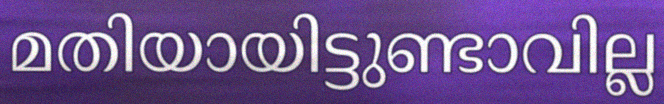
മതിയായിട്ടുണ്ടാവില്ല